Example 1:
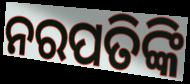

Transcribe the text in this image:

ନରପତିଙ୍କି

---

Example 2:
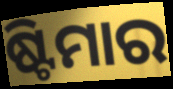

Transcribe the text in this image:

ଷ୍ଟିମାର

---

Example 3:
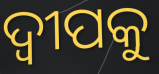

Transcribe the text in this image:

ଦ୍ୱୀପକୁ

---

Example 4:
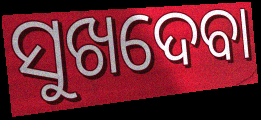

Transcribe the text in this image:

ସୁଖଦେବା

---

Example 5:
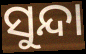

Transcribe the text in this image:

ସୁନ୍ଦା